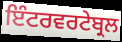
ਇੰਟਰਵਰਟੇਬ੍ਰਲ